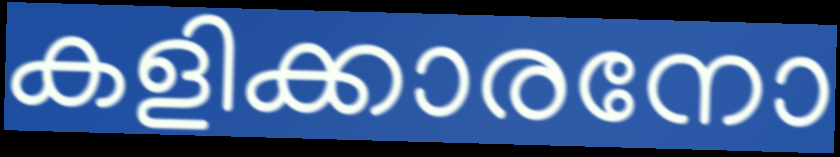
കളിക്കാരനോ